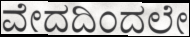
ವೇದದಿಂದಲೇ